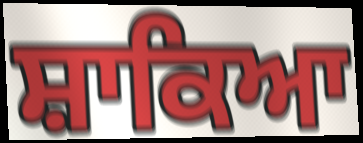
ਸ਼ਾਕਿਆ